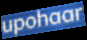
upohaar